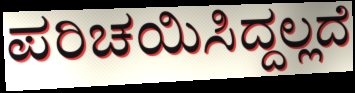
ಪರಿಚಯಿಸಿದ್ದಲ್ಲದೆ